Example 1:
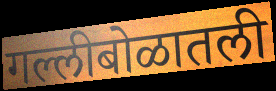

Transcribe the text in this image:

गल्लीबोळातली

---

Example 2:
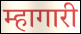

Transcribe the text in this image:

म्हागारी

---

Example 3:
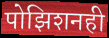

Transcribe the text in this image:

पोझिशनही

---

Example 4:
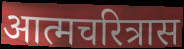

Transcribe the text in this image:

आत्मचरित्रास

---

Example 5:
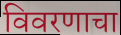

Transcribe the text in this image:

विवरणाचा